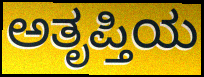
ಅತೃಪ್ತಿಯ